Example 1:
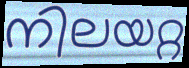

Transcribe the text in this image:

നിലയറ്റ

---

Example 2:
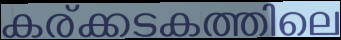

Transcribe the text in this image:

കര്ക്കടകത്തിലെ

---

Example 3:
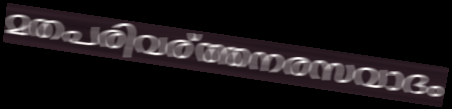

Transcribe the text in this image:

മതപരിവര്ത്തനരസവാദം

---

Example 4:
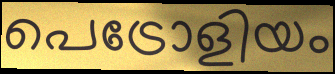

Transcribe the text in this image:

പെട്രോളിയം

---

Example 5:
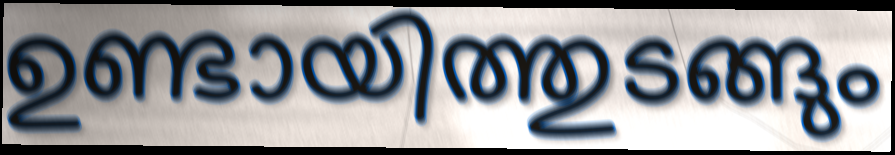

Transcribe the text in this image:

ഉണ്ടായിത്തുടങ്ങും